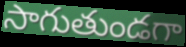
సాగుతుండగా